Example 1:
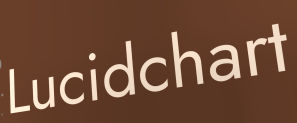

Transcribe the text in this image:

Lucidchart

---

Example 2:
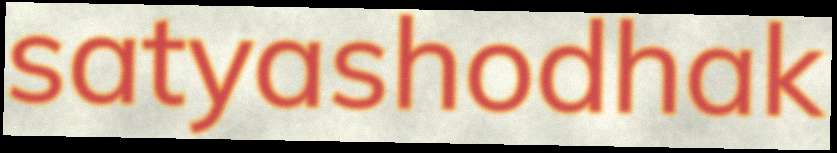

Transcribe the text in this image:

satyashodhak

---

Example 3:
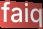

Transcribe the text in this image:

faiq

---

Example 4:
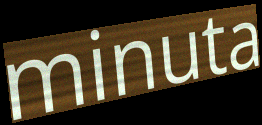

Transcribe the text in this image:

minuta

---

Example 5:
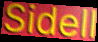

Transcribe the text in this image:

Sidell